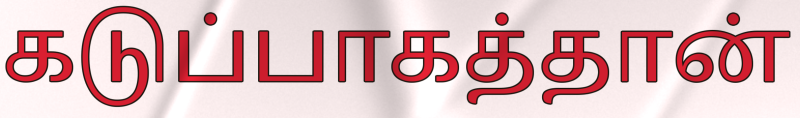
கடுப்பாகத்தான்